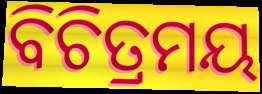
ବିଚିତ୍ରମୟ